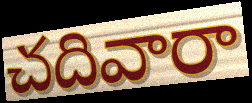
చదివారా